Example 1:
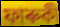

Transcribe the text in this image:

ফাৰুকী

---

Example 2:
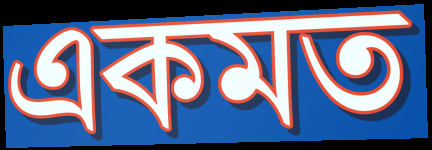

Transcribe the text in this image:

একমত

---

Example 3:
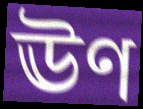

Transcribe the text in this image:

ঊণ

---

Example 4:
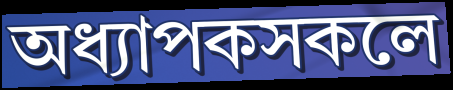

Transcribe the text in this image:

অধ্যাপকসকলে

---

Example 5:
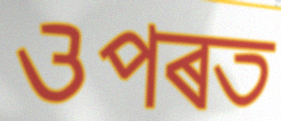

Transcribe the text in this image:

ওপৰত